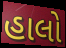
હાલો